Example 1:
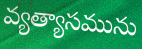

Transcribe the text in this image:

వ్యత్యాసమును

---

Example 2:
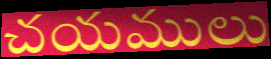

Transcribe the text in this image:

చయములు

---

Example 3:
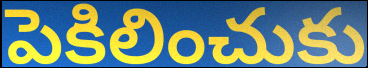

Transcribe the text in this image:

పెకిలించుకు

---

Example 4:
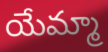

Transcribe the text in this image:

యేమ్మా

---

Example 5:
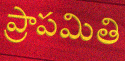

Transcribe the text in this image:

ప్రాపమితి